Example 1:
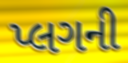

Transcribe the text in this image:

પ્લગની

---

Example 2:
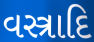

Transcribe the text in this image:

વસ્ત્રાદિ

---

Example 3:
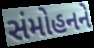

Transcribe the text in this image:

સંમોહનને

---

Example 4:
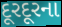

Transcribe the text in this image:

દૂરદૂરના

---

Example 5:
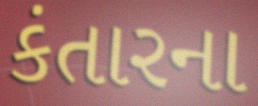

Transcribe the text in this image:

કંતારના